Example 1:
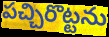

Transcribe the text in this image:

పచ్చిరొట్టను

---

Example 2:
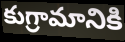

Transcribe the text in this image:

కుగ్రామానికి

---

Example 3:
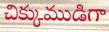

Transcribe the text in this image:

చిక్కుముడిగా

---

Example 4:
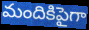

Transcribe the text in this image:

మందికిపైగా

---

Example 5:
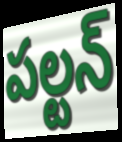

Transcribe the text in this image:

పల్టన్